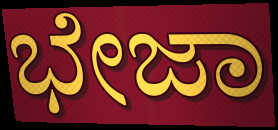
ಭೇಜಾ